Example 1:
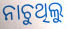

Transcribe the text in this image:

ନାଚୁଥିଲୁ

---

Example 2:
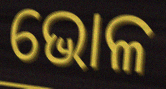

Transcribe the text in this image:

ଭୋଳ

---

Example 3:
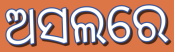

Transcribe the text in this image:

ଅସଲରେ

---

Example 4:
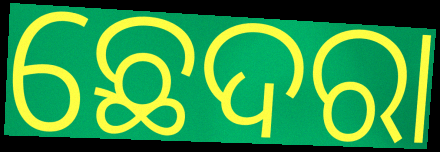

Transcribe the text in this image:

ଛେଦରା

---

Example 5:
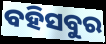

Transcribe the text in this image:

ବହିସବୁର